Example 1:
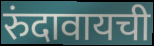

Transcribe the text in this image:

रुंदावायची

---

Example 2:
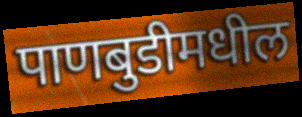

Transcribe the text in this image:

पाणबुडीमधील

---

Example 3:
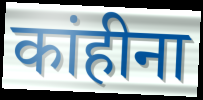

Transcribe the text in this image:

कांहीना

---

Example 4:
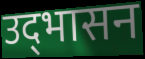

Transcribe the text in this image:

उद्भासन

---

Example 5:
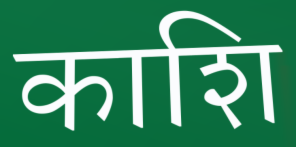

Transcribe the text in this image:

काशि